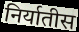
निर्यातीस